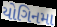
યોગિનમા